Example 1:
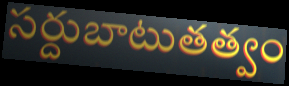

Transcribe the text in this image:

సర్దుబాటుతత్వం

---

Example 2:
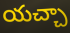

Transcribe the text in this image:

యచ్చా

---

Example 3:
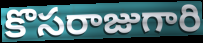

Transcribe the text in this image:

కొసరాజుగారి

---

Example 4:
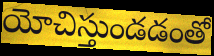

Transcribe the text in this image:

యోచిస్తుండడంతో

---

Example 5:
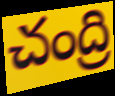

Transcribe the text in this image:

చంద్రి